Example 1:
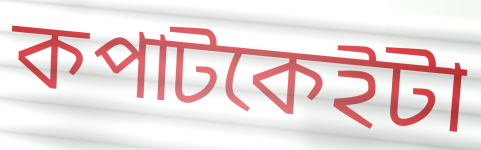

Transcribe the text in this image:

কপাটকেইটা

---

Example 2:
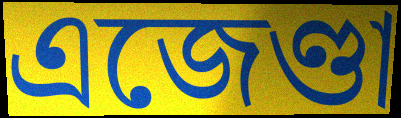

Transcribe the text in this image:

এজেণ্ডা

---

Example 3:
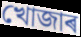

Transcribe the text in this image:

খোজাৰ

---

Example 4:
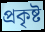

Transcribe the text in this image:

প্ৰকৃষ্ট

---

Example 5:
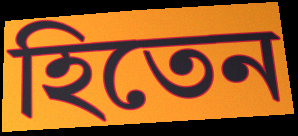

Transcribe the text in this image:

হিতেন